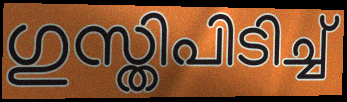
ഗുസ്തിപിടിച്ച്